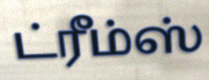
ட்ரீம்ஸ்